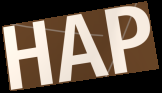
HAP